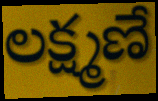
లక్ష్మణే